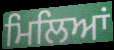
ਮਿਲਿਆਂ